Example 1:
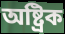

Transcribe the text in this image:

অষ্ট্ৰিক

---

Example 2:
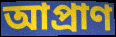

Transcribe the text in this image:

আপ্ৰাণ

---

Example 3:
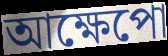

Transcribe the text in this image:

আক্ষেপো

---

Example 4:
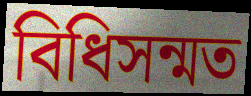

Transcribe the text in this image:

বিধিসন্মত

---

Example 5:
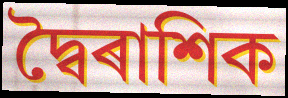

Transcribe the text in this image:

দ্বৈৰাশিক